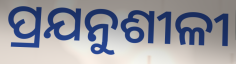
ପ୍ରଯନୁଶୀଳୀ